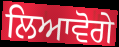
ਲਿਆਵੋਗੇ